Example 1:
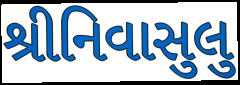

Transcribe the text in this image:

શ્રીનિવાસુલુ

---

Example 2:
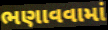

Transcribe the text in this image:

ભણાવવામાં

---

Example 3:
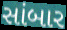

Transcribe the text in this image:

સાંબાર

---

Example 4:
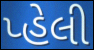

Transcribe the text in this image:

પ્હેલી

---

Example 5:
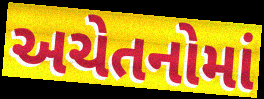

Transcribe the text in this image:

અચેતનોમાં